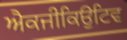
ਐਕਜੀਕਿਉਟਿਵ